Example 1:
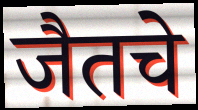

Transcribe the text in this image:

जैतचे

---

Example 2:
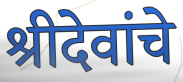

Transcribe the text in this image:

श्रीदेवांचे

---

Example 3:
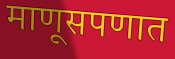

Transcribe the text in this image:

माणूसपणात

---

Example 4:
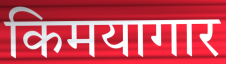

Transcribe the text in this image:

किमयागार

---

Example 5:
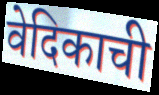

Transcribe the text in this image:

वेदिकाची